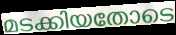
മടക്കിയതോടെ